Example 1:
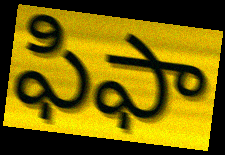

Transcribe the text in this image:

ఫిఫా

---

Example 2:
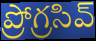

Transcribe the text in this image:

ప్రోగ్రసివ్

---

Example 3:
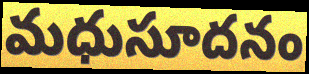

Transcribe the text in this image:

మధుసూదనం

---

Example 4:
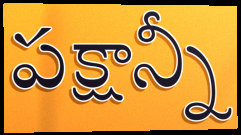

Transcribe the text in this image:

పక్షాన్నీ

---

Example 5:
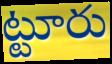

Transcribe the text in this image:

ట్టూరు